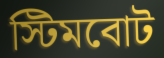
স্টিমবোট